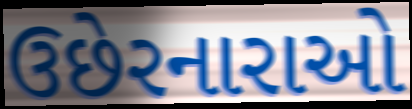
ઉછેરનારાઓ